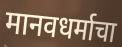
मानवधर्माचा